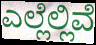
ಎಲ್ಲೆಲ್ಲಿವೆ